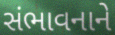
સંભાવનાને